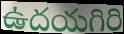
ఉదయగిరి